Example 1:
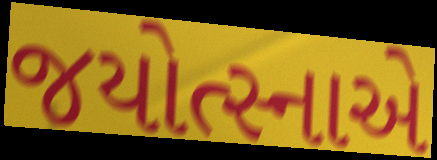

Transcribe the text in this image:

જયોત્સ્નાએ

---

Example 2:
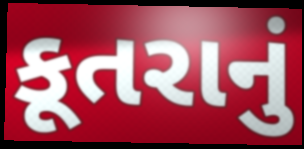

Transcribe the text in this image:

કૂતરાનું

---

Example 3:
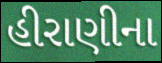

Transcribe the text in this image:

હીરાણીના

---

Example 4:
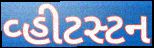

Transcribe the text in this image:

વ્હીટસ્ટન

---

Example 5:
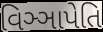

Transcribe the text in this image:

વિઞ્ઞાપેતિ